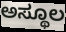
ಅಸ್ಥೂಲ